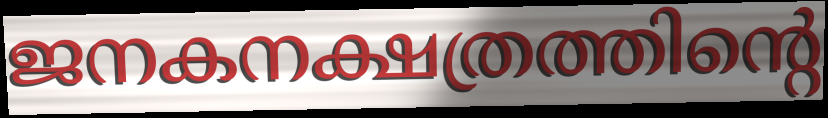
ജനകനക്ഷത്രത്തിന്റെ